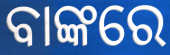
ବାଙ୍କରେ